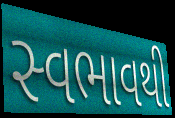
સ્વભાવથી